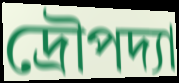
দ্রৌপদ্যা